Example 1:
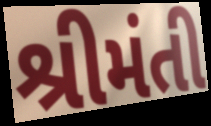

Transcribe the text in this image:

શ્રીમંતી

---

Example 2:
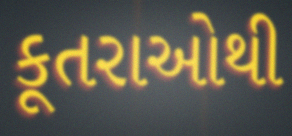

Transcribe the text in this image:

કૂતરાઓથી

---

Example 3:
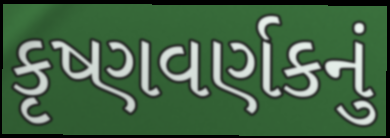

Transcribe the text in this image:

કૃષ્ણવર્ણકનું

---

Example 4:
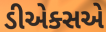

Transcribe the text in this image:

ડીએક્સએ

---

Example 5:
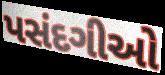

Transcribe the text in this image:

પસંદગીઓ